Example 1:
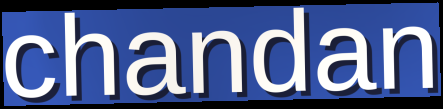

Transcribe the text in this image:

chandan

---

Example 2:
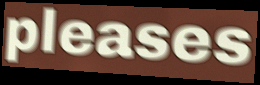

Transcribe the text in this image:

pleases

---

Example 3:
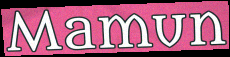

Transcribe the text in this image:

Mamun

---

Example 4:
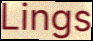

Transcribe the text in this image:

Lings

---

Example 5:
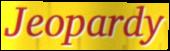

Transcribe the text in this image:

Jeopardy